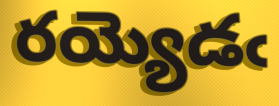
రయ్యెడఁ